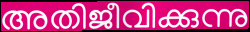
അതിജീവിക്കുന്നു